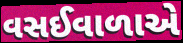
વસઈવાળાએ